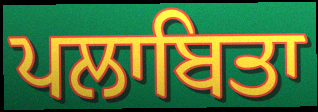
ਪਲਾਬਿਤਾ